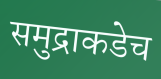
समुद्राकडेच